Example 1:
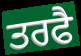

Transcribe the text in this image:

ਤਰਫੈ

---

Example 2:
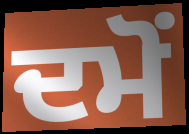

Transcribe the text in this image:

ਦਮੋਂ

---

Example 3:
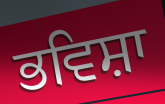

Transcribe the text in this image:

ਭਵਿਸ਼ਾ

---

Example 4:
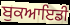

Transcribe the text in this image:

ਬੁਕਆਇਡੀ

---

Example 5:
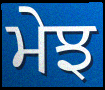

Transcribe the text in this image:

ਮੇਝ